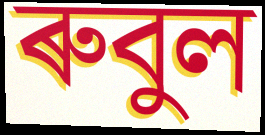
ৰুবুল